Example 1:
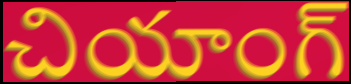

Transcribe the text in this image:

చియాంగ్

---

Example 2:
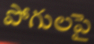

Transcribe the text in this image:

పోగులపై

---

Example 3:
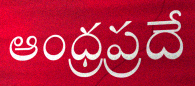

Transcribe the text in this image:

ఆంధ్రప్రదే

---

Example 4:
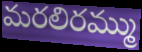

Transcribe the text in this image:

మరలిరమ్ము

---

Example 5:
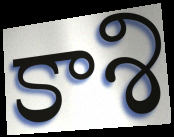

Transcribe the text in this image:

కాశి